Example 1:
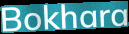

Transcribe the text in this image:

Bokhara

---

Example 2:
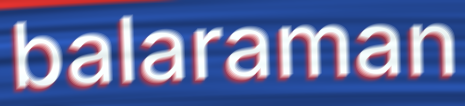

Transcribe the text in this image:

balaraman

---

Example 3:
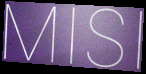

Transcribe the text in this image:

MISI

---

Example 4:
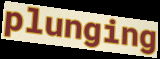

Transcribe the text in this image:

plunging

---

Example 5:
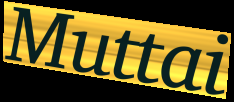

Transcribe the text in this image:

Muttai